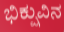
ಭಿಕ್ಷುವಿನ